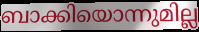
ബാക്കിയൊന്നുമില്ല